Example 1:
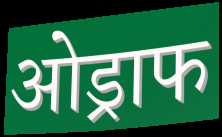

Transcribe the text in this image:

ओड्राफ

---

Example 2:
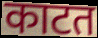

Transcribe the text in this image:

काटत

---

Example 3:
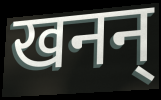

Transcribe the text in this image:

खनन्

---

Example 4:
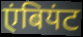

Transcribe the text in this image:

एंबियंट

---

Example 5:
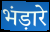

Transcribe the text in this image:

भंड़ारे